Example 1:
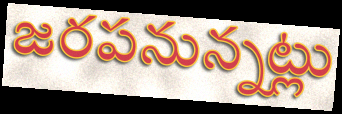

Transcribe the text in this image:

జరపనున్నట్లు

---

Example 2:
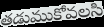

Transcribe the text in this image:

తడుముకోవలసి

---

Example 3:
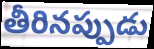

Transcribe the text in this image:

తీరినప్పుడు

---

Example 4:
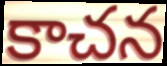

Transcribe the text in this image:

కాచన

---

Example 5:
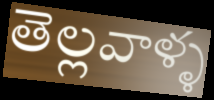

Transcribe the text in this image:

తెల్లవాళ్ళ